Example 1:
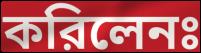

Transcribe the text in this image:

করিলেনঃ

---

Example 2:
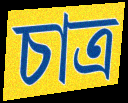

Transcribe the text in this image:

চাত্র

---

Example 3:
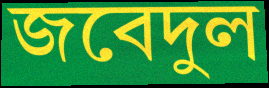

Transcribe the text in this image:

জবেদুল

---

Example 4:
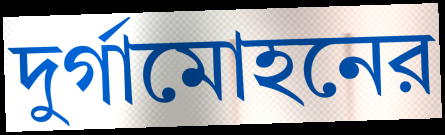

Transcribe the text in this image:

দুর্গামোহনের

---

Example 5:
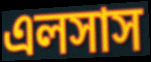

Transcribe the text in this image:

এলসাস